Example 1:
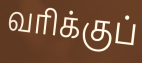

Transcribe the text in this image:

வரிக்குப்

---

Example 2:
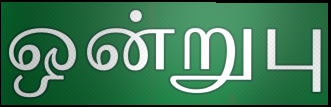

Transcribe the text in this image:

ஒன்றுபு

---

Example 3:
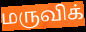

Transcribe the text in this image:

மருவிக்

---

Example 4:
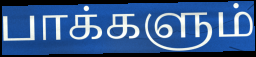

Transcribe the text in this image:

பாக்களும்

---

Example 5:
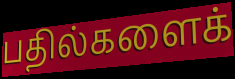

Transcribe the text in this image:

பதில்களைக்